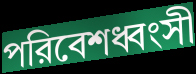
পরিবেশধ্বংসী